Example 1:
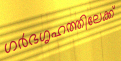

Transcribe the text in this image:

ഗർഭഗൃഹത്തിലേക്ക്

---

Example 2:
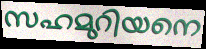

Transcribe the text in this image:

സഹമുറിയനെ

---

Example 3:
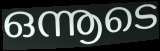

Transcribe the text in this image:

ഒന്നൂടെ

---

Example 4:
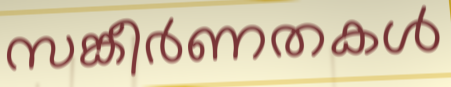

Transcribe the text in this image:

സങ്കീർണതകൾ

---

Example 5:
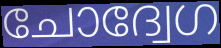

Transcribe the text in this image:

ചോദ്വേഗ